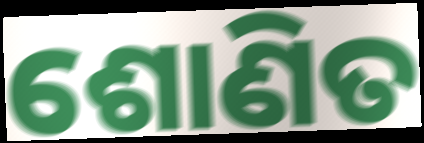
ଶୋଣିତ